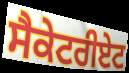
ਸੈਕੇਟਰੀਏਟ